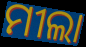
ମୀଲା